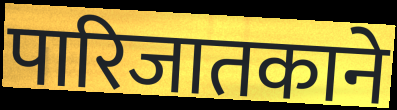
पारिजातकाने